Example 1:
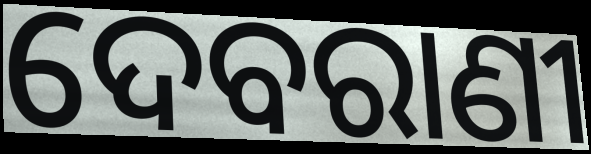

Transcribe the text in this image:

ଦେବରାଣୀ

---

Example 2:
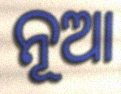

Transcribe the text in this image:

ନୂଆ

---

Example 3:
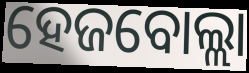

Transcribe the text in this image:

ହେଜବୋଲ୍ଲା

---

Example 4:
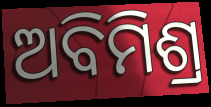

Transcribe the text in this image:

ଅବିମିଶ୍ର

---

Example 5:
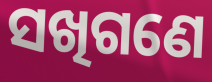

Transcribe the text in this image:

ସଖିଗଣେ